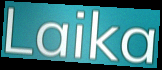
Laika